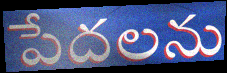
పేదలను